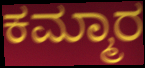
ಕಮ್ಮಾರ